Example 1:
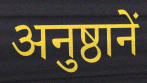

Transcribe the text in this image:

अनुष्ठानें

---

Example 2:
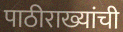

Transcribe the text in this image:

पाठीराख्यांची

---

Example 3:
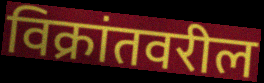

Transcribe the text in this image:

विक्रांतवरील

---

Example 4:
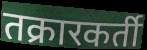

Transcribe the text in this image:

तक्रारकर्ती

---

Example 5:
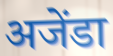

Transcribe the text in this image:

अजेंडा